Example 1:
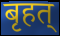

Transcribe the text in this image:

बृहत्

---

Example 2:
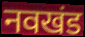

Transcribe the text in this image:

नवखंड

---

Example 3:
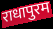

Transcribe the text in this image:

राधापुरम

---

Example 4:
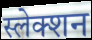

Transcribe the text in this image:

स्लेक्शन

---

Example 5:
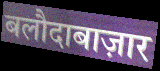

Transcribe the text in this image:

बलौदाबाज़ार